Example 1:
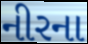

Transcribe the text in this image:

નીરના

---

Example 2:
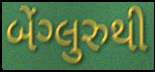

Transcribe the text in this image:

બેંગ્લુરુથી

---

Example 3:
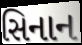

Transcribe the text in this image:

સિનાન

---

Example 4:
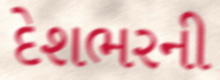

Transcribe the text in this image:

દેશભરની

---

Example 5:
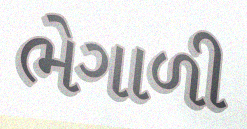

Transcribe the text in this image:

ભેગાળી